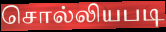
சொல்லியபடி